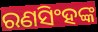
ରଣସିଂହଙ୍କ